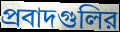
প্রবাদগুলির